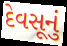
દેવસૂનું